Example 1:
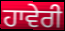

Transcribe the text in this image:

ਹਾਵੇਰੀ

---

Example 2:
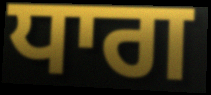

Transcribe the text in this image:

ਧਾਗ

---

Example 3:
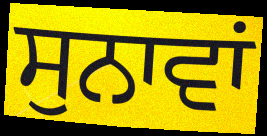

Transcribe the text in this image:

ਸੁਨਾਵਾਂ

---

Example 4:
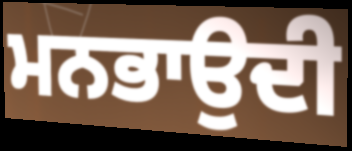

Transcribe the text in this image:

ਮਨਭਾਉਦੀ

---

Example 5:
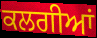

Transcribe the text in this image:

ਕਲਗੀਆਂ